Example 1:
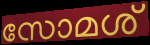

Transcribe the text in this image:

സോമശ്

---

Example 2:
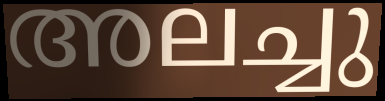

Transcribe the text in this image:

അലച്ചു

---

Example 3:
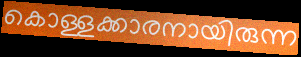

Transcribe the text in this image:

കൊള്ളക്കാരനായിരുന്ന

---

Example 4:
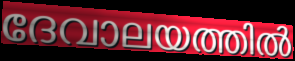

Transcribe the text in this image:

ദേവാലയത്തിൽ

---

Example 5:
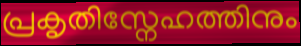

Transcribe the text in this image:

പ്രകൃതിസ്നേഹത്തിനും